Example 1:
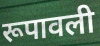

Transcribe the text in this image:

रूपावली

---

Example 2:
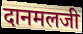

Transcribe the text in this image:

दानमलजी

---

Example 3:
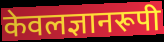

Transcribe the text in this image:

केवलज्ञानरूपी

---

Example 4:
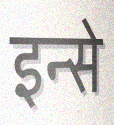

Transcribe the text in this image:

इन्से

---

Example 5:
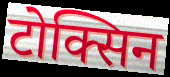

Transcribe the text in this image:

टोक्सिन